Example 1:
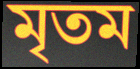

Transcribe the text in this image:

মৃতম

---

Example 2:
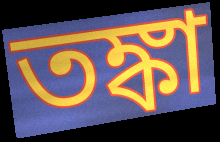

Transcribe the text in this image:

তঙ্কা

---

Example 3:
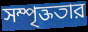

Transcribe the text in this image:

সম্পৃক্ততার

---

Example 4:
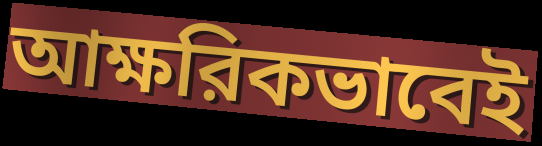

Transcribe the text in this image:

আক্ষরিকভাবেই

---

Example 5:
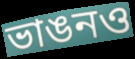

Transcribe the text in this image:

ভাঙনও